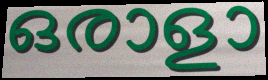
ഒരാളാ